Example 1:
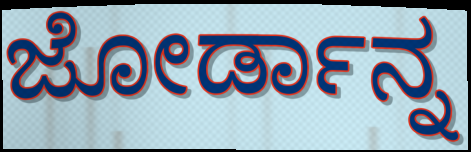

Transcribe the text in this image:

ಜೋರ್ಡಾನ್ನ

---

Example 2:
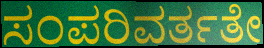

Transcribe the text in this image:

ಸಂಪರಿವರ್ತತೇ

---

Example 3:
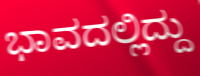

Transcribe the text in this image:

ಭಾವದಲ್ಲಿದ್ದು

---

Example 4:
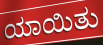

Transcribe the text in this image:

ಯಾಯಿತು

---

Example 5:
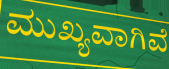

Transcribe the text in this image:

ಮುಖ್ಯವಾಗಿವೆ